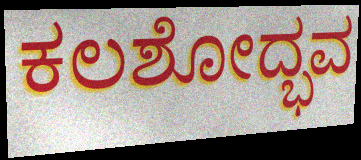
ಕಲಶೋದ್ಭವ